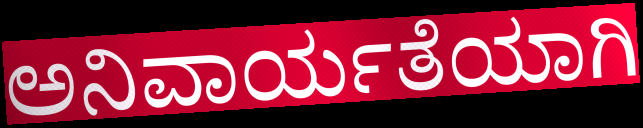
ಅನಿವಾರ್ಯತೆಯಾಗಿ